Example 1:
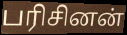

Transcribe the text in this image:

பரிசினன்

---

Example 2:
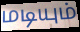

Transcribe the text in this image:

மடியும்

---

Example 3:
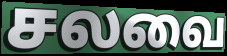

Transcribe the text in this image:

சலவை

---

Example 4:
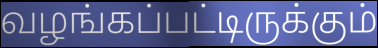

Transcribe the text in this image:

வழங்கப்பட்டிருக்கும்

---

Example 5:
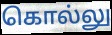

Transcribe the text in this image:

கொல்லு